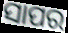
ସାପର